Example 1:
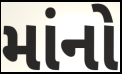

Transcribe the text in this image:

માંનો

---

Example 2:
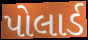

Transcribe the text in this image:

પોલાર્ડ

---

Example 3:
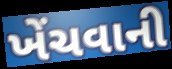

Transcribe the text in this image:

ખેંચવાની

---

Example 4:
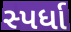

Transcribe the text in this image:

સ્પર્ધા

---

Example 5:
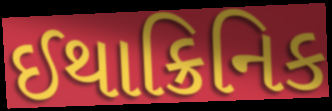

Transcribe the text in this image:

ઈથાક્રિનિક